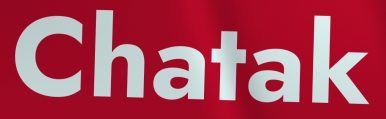
Chatak